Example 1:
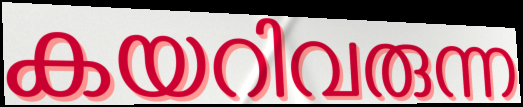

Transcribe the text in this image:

കയറിവരുന്ന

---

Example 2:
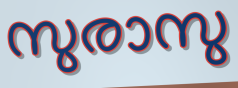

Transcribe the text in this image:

സുരാസു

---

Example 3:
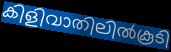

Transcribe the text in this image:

കിളിവാതിലിൽകൂടി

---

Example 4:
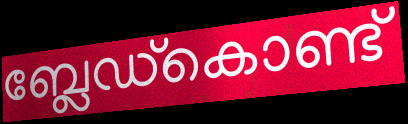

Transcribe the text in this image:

ബ്ലേഡ്കൊണ്ട്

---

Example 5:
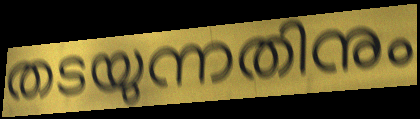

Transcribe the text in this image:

തടയുന്നതിനും